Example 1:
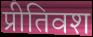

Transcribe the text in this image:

प्रीतिवश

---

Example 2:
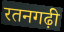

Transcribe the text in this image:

रतनगढ़ी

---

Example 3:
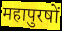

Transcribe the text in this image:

महापुरषों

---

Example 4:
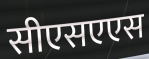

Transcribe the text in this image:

सीएसएएस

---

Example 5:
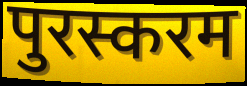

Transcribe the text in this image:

पुरस्करम